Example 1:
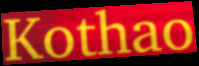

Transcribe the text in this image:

Kothao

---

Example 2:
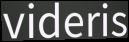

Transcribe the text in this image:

videris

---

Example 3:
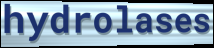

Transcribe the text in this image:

hydrolases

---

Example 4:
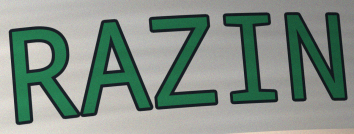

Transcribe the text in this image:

RAZIN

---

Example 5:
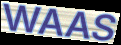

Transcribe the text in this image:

WAAS